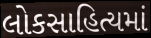
લોકસાહિત્યમાં